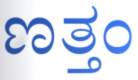
ಣತ್ತಂ